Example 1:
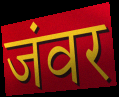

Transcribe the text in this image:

जंवर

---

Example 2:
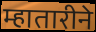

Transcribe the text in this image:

म्हातारीने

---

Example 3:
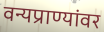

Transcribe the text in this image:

वन्यप्राण्यांवर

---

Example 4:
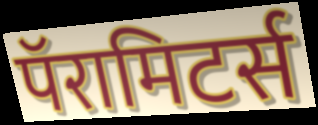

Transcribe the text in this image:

पॅरामिटर्स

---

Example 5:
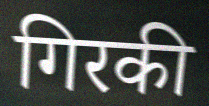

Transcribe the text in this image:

गिरकी